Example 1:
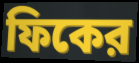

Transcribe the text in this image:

ফিকের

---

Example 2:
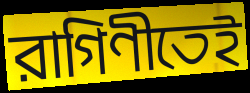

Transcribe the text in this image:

রাগিণীতেই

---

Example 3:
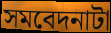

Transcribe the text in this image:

সমবেদনাটা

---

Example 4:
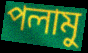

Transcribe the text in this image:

পলামু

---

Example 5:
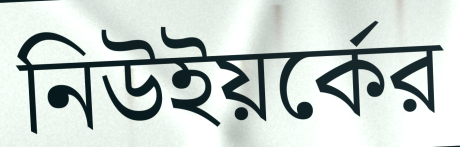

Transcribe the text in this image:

নিউইয়র্কের